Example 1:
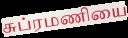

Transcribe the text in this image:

சுப்ரமணியை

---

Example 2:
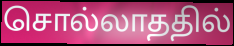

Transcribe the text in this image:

சொல்லாததில்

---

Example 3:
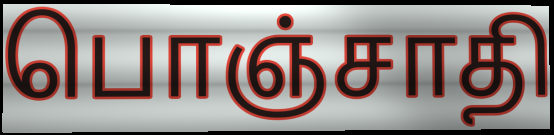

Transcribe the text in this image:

பொஞ்சாதி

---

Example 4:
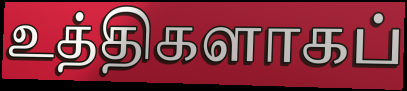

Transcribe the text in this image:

உத்திகளாகப்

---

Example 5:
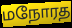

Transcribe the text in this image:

மநோரத